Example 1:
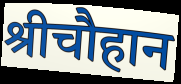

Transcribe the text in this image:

श्रीचौहान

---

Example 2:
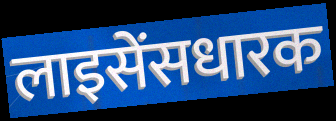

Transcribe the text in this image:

लाइसेंसधारक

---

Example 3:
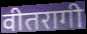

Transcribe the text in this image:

वीतरागी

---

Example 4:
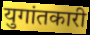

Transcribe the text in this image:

युगांतकारी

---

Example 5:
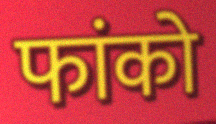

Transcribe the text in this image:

फांको